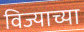
विज्याच्या